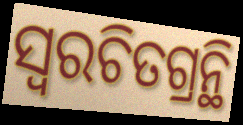
ସ୍ଵରଚିତଗ୍ରନ୍ଥି